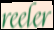
reeler